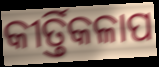
କୀର୍ତ୍ତିକଳାପ